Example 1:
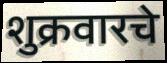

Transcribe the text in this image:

शुक्रवारचे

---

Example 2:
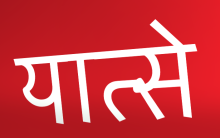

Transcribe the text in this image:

यात्से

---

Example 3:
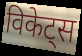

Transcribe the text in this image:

विकेट्स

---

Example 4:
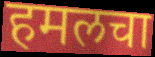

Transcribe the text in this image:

हमलचा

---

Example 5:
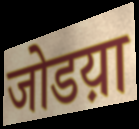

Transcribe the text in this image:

जोडय़ा